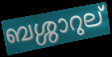
ബശ്ശാറുല്